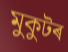
মুকুটৰ